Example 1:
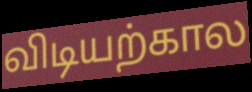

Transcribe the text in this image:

விடியற்கால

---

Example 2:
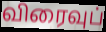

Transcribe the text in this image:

விரைவுப்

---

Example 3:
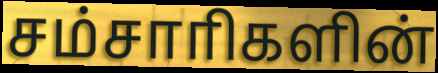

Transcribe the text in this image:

சம்சாரிகளின்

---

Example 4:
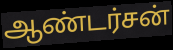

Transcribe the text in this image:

ஆண்டர்சன்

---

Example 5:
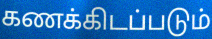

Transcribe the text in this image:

கணக்கிடப்படும்